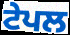
ਟੇਪਲ